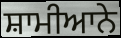
ਸ਼ਾਮੀਆਨੇ